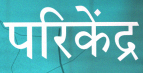
परिकेंद्र